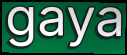
gaya